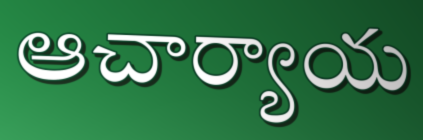
ఆచార్యాయ